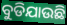
ବୁଡିଯାଉଛି